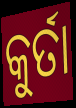
କୁର୍ତା